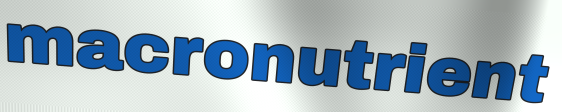
macronutrient